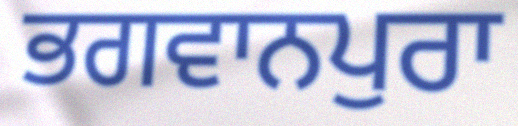
ਭਗਵਾਨਪੁਰਾ